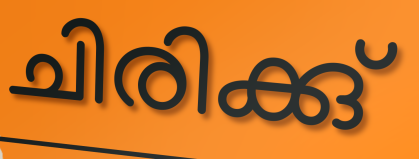
ചിരിക്കു്